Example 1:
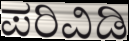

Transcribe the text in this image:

ಪರಿವಿಡಿ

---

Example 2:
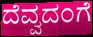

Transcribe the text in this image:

ದೆವ್ವದಂಗೆ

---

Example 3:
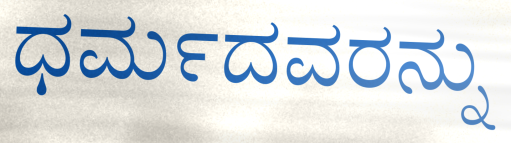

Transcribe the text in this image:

ಧರ್ಮದವರನ್ನು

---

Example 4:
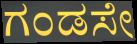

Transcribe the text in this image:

ಗಂಡಸೇ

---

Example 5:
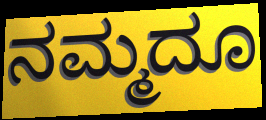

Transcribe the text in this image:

ನಮ್ಮದೂ